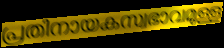
പ്രതിനായകസ്വഭാവമുള്ള